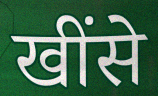
खींसे